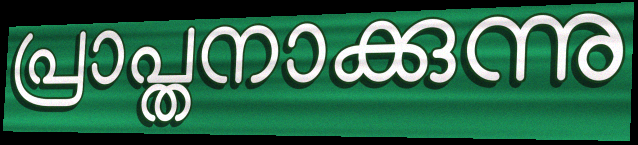
പ്രാപ്തനാക്കുന്നു